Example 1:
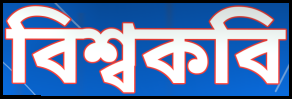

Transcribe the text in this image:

বিশ্বকবি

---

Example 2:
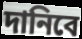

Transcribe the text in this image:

দানিবে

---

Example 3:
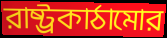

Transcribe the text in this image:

রাষ্ট্রকাঠামোর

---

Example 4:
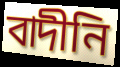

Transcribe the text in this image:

বাদীনি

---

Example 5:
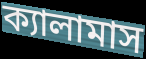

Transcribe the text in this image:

ক্যালামাস